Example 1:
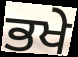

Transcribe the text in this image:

ਭਖੇ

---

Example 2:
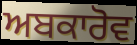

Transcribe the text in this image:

ਅਬਕਾਰੋਵ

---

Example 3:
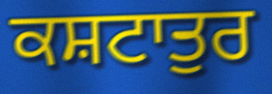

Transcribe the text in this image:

ਕਸ਼ਟਾਤੁਰ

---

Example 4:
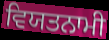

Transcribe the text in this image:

ਵਿਯਤਨਾਮੀ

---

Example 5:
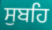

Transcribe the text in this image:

ਸੁਬਹਿ